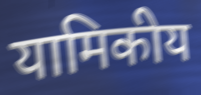
यामिकीय